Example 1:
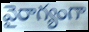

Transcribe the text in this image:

వైరాగ్యంగా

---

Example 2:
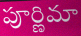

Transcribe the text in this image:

పూర్ణిమా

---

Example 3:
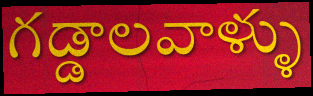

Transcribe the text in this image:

గడ్డాలవాళ్ళు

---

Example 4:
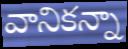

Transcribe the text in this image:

వానికన్నా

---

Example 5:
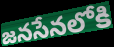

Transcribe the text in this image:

జనసేనలోకి